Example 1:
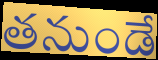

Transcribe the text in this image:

తనుండే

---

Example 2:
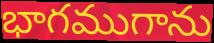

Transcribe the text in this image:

భాగముగాను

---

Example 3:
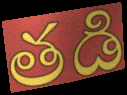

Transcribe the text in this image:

తడి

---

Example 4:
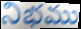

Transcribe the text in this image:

నిభము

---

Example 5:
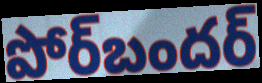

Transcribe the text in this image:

పోర్‌బందర్